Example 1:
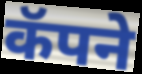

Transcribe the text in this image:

कॅपने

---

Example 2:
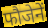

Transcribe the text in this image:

फौजेनें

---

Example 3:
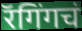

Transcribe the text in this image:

रॅगिंगचं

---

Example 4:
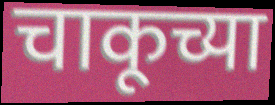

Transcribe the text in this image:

चाकूच्या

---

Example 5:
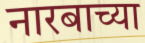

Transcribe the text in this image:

नारबाच्या